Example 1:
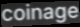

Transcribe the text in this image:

coinage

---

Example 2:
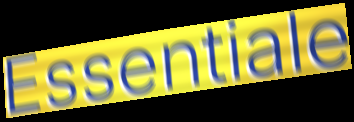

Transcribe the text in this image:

Essentiale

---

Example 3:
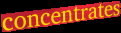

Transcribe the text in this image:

concentrates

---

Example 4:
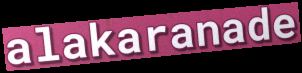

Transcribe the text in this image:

alakaranade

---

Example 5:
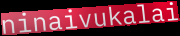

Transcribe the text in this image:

ninaivukalai